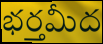
భర్తమీద